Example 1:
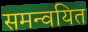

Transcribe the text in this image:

समन्वयित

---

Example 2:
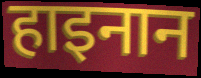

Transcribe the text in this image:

हाइनान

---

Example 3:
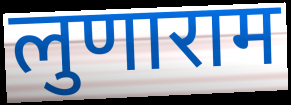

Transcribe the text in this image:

लुणाराम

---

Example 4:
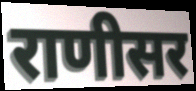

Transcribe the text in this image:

राणीसर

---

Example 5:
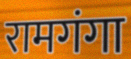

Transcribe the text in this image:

रामगंगा